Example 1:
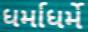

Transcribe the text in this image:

ધર્માધર્મે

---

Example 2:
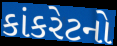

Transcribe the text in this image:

કાંકરેટનો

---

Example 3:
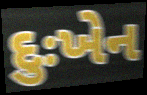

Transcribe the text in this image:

દુઃખેન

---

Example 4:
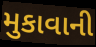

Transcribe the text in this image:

મુકાવાની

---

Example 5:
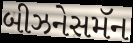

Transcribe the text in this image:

બીઝનેસમૅન